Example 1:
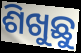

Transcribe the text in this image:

ଶିଖୁଛୁ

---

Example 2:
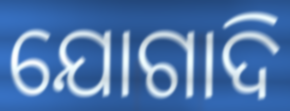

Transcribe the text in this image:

ଯୋଗାଦି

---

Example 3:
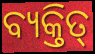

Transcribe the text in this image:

ବ୍ୟକ୍ତିତ୍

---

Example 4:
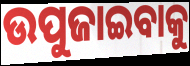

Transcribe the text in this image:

ଉପୁଜାଇବାକୁ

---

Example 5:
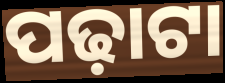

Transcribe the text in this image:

ପଢ଼ାଟା